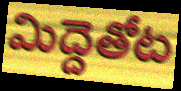
మిద్దెతోట